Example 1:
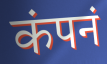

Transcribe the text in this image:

कंपनं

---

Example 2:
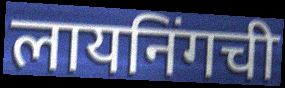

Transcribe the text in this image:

लायनिंगची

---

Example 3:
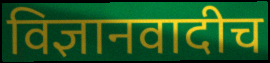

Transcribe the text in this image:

विज्ञानवादीच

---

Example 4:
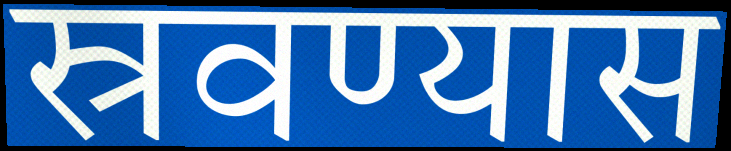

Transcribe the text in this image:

स्रवण्यास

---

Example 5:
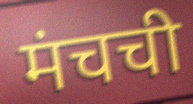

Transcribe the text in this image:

मंचची